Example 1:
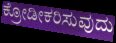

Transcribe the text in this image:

ಕ್ರೋಡೀಕರಿಸುವುದು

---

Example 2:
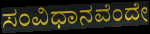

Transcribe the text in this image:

ಸಂವಿಧಾನವೆಂದೇ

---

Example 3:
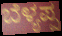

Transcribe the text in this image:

ಬೆಳ್ಯಪ್ಪ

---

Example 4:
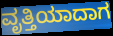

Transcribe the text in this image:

ವೃತ್ತಿಯಾದಾಗ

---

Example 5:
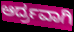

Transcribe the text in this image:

ಆರ್ದ್ರವಾಗಿ